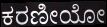
ಕರಣೀಯೋ